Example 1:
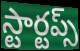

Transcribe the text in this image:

స్టార్టప్స్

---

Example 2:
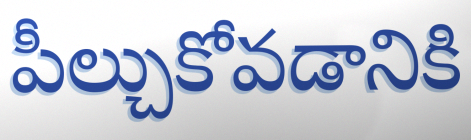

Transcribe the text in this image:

పీల్చుకోవడానికి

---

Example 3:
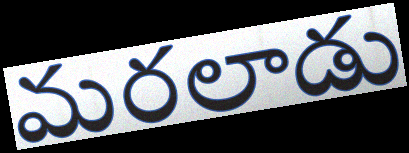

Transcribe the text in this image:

మరలాడు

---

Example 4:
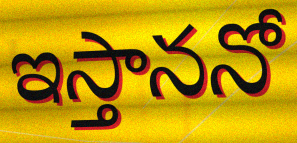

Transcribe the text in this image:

ఇస్తాననో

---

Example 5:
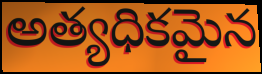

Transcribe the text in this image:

అత్యధికమైన